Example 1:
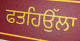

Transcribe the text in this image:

ਫਤਹਿਉੱਲਾ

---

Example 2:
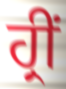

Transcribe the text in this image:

ਹ੍ਰੀਂ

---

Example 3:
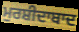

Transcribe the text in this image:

ਮੁਰਸ਼ੀਦਾਬਾਦ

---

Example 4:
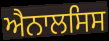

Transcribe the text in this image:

ਐਨਾਲਸਿਸ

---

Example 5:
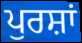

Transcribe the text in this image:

ਪੁਰਸ਼ਾਂ